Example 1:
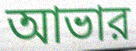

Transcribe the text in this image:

আভার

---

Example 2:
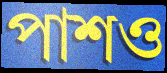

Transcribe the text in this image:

পাশও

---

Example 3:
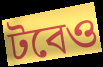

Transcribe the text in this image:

টবেও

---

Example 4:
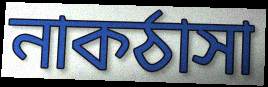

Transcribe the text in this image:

নাকঠাসা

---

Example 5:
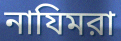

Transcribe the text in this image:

নাযিমরা